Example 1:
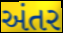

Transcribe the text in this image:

અંતર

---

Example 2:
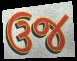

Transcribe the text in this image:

ઉજ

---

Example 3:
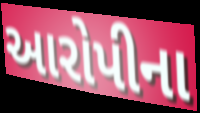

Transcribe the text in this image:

આરોપીના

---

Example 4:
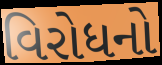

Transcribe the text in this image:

વિરોધનો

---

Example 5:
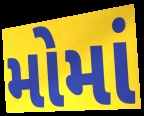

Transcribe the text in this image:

મોમાં